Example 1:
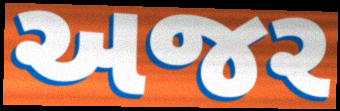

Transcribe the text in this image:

અજર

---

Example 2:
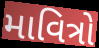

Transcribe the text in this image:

માવિત્રો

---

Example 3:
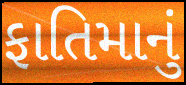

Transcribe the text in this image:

ફાતિમાનું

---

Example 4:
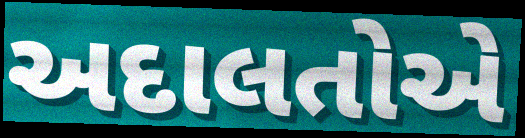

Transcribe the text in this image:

અદાલતોએ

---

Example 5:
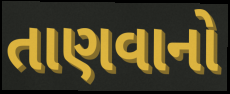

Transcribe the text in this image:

તાણવાનો